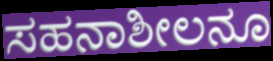
ಸಹನಾಶೀಲನೂ